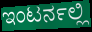
ಇಂಟರ್ನಲ್ಲಿ